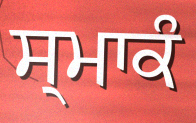
ਸ੍ਮਾਕੰ